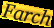
Farch